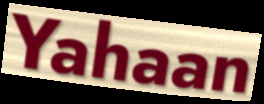
Yahaan